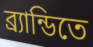
ব্র্যান্ডিতে